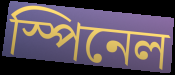
স্পিনেল